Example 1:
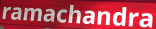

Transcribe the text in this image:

ramachandra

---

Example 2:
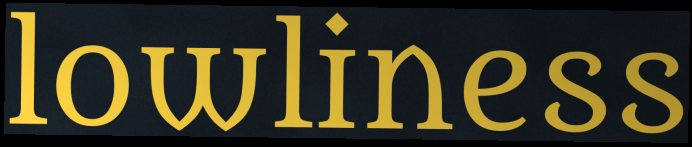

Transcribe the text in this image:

lowliness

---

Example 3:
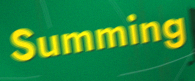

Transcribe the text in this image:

Summing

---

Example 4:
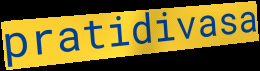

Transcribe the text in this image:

pratidivasa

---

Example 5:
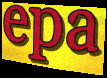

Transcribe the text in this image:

epa